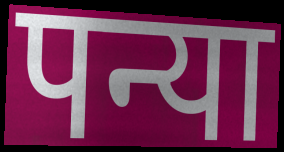
पन्या